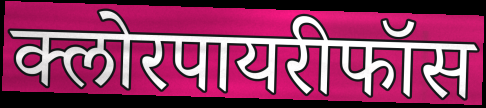
क्लोरपायरीफॉस